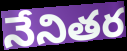
నేనితర